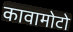
कावामोटो